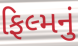
ફિલ્મનું